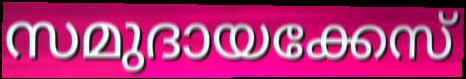
സമുദായക്കേസ്